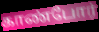
காண்போர்